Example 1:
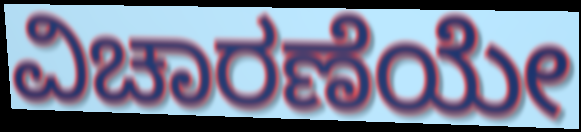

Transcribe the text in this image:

ವಿಚಾರಣೆಯೇ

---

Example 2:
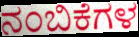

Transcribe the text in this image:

ನಂಬಿಕೆಗಳ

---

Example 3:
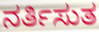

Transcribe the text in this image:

ನರ್ತಿಸುತ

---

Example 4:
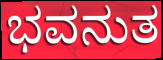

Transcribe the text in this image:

ಭವನುತ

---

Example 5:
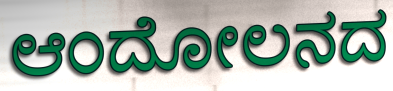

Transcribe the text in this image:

ಆಂದೋಲನದ